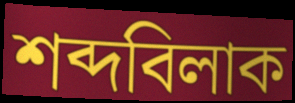
শব্দবিলাক